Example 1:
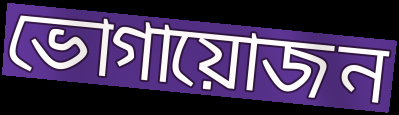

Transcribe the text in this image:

ভোগায়োজন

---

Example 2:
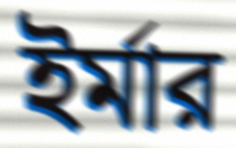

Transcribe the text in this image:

ইর্মার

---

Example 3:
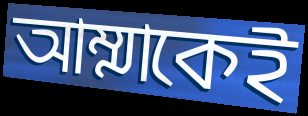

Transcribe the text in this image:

আম্মাকেই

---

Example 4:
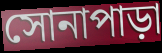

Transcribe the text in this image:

সোনাপাড়া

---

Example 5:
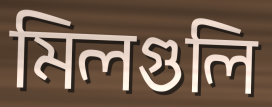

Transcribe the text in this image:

মিলগুলি